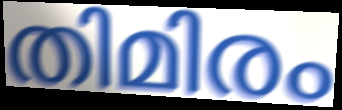
തിമിരം